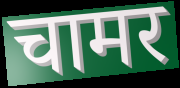
चामर